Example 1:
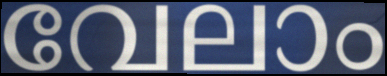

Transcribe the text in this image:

വേലാം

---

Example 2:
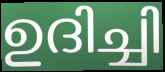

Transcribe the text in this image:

ഉദിച്ചി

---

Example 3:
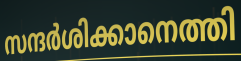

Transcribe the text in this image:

സന്ദർശിക്കാനെത്തി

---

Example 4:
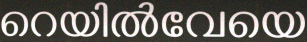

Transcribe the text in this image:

റെയിൽവേയെ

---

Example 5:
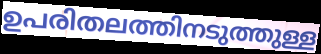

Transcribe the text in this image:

ഉപരിതലത്തിനടുത്തുള്ള